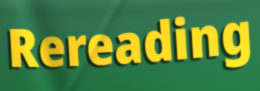
Rereading